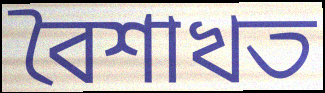
বৈশাখত